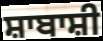
ਸ਼ਾਬਾਸ਼ੀ